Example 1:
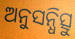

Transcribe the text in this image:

ଅନୁସନ୍ଧିତ୍ସୁ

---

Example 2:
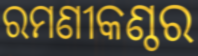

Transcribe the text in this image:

ରମଣୀକଣ୍ଠର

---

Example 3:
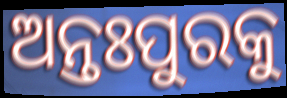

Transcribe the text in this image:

ଅନ୍ତଃପୁରକୁ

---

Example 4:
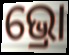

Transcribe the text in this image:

ଭ୍ରୋ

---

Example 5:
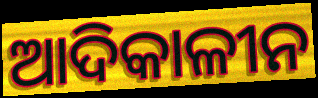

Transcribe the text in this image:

ଆଦିକାଳୀନ